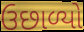
ઉછાળ્યો